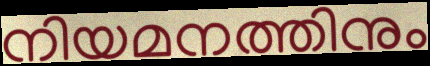
നിയമനത്തിനും